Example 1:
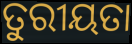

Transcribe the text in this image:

ତୁରୀୟତା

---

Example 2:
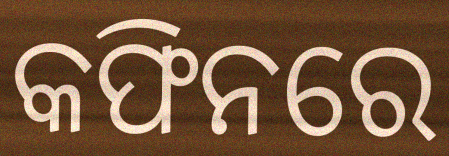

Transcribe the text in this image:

କଫିନରେ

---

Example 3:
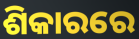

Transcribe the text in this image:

ଶିକାରରେ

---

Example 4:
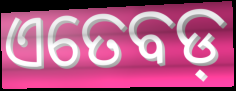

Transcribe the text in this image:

ଏତେବଡ଼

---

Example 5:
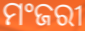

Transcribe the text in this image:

ମଂଜରୀ